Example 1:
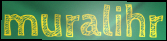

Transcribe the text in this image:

muralihr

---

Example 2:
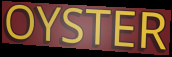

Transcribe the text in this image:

OYSTER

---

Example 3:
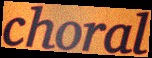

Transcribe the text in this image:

choral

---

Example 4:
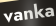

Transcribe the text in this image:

vanka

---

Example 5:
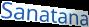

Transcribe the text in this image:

Sanatana